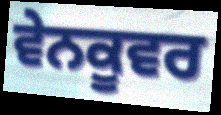
ਵੇਨਕੂਵਰ